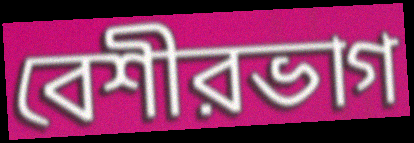
বেশীরভাগ